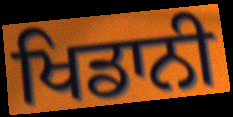
ਖਿਡਾਨੀ